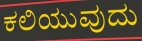
ಕಲಿಯುವುದು